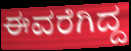
ಈವರೆಗಿದ್ದ